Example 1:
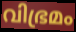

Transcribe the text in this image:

വിഭ്രമം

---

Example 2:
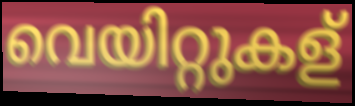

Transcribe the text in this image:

വെയിറ്റുകള്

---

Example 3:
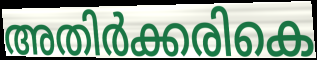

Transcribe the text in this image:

അതിർക്കരികെ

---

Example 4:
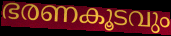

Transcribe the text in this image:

ഭരണകൂടവും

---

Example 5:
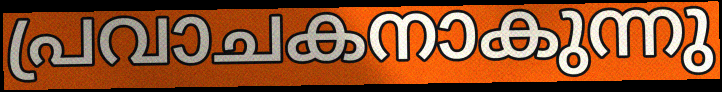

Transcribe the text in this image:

പ്രവാചകനാകുന്നു